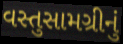
વસ્તુસામગ્રીનું